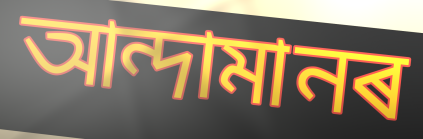
আন্দামানৰ